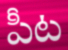
పీట